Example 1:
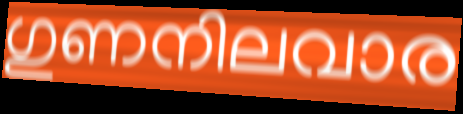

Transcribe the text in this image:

ഗുണനിലവാര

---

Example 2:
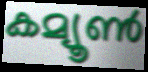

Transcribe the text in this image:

കമ്യൂൺ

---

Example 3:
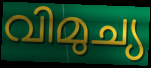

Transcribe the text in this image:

വിമുച്യ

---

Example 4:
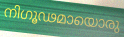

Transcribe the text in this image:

നിഗൂഢമായൊരു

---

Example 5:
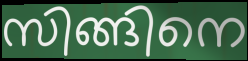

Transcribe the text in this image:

സിങ്ങിനെ